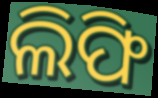
ଲିଫି